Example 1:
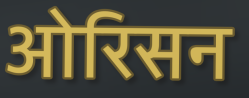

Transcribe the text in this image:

ओरिसन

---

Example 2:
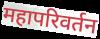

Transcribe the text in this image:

महापरिवर्तन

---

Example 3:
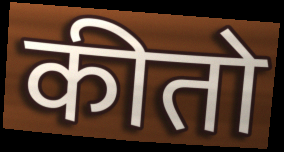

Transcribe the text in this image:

कीतो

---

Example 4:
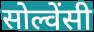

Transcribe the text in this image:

सोल्वेंसी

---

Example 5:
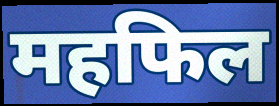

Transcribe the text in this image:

महफिल